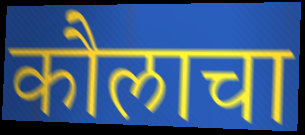
कौलाचा